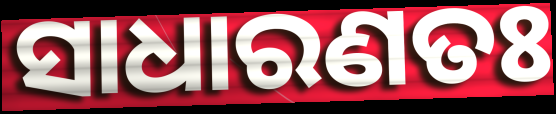
ସାଧାରଣତଃ